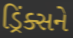
ડ્રિંક્સને